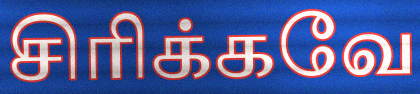
சிரிக்கவே